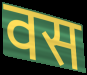
वस